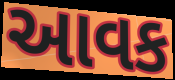
આવક